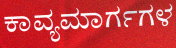
ಕಾವ್ಯಮಾರ್ಗಗಳ